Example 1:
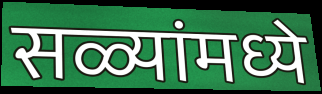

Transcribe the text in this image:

सळ्यांमध्ये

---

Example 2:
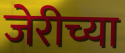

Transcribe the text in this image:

जेरीच्या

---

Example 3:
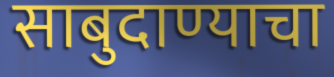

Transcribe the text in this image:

साबुदाण्याचा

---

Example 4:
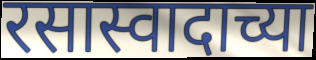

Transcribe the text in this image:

रसास्वादाच्या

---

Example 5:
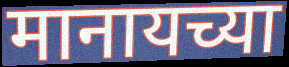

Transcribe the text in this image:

मानायच्या